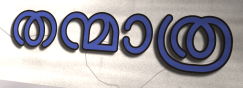
തന്മാത്ര